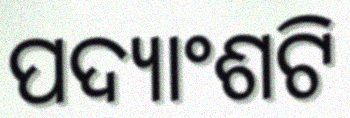
ପଦ୍ୟାଂଶଟି